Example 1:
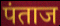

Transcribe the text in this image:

पंताज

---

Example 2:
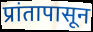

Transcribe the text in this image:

प्रांतापासून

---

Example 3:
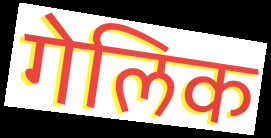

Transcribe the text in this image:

गेलिक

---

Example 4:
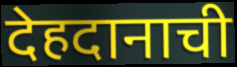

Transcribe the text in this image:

देहदानाची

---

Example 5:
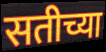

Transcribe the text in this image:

सतीच्या